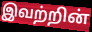
இவற்றின்